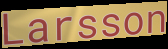
Larsson